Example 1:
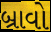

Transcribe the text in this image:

બ્રાવો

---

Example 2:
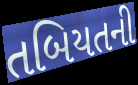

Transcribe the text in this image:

તબિયતની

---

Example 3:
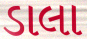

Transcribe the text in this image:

ડાલા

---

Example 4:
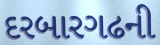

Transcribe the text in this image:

દરબારગઢની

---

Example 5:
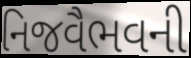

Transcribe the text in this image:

નિજવૈભવની